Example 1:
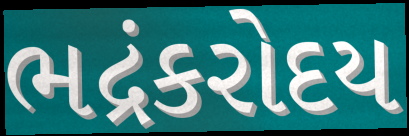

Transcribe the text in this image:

ભદ્રંકરોદય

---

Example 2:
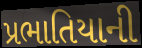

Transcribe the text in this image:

પ્રભાતિયાની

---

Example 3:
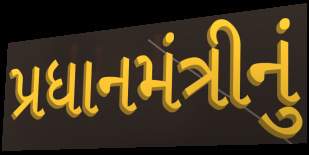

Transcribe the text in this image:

પ્રધાનમંત્રીનું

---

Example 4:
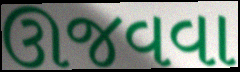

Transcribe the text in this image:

ઊજવવા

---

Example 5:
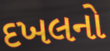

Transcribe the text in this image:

દખલનો